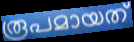
രൂപമായത്